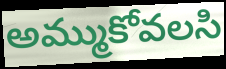
అమ్ముకోవలసి